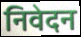
निवेदन